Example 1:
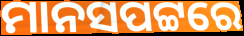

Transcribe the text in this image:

ମାନସପଟ୍ଟରେ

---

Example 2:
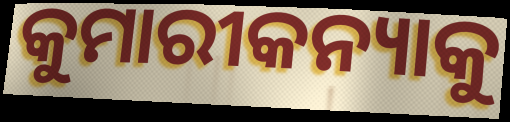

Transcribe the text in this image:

କୁମାରୀକନ୍ୟାକୁ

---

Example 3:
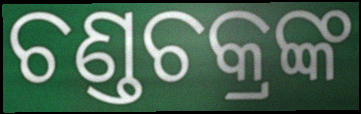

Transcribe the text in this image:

ଚଣ୍ଡଚକ୍ରଙ୍କ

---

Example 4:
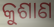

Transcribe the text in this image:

କୁଶାଣ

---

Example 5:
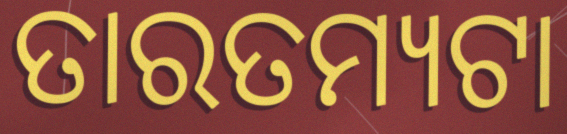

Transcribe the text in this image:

ତାରତମ୍ୟଟା